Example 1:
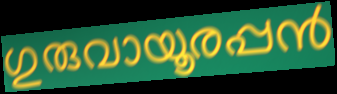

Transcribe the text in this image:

ഗുരുവായൂരപ്പൻ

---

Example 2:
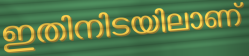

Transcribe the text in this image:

ഇതിനിടയിലാണ്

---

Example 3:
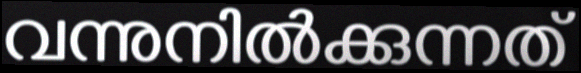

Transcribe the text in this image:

വന്നുനിൽക്കുന്നത്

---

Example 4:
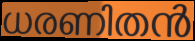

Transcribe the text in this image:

ധരണിതൻ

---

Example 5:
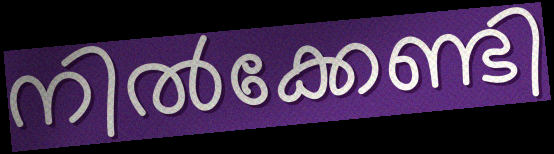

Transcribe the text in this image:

നിൽക്കേണ്ടി